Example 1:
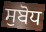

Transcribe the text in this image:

ਸੁਬੋਧ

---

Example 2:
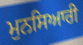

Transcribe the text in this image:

ਮੁਨਸਿਆਰੀ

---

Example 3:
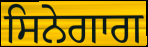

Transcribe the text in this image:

ਸਿਨੇਗਾਗ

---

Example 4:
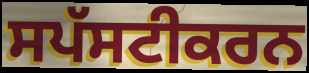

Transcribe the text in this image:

ਸਪੱਸਟੀਕਰਨ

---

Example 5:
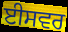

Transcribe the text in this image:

ਈਸਵਰ